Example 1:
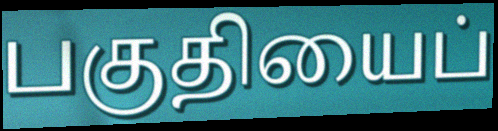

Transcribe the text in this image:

பகுதியைப்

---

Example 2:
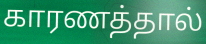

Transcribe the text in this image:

காரணத்தால்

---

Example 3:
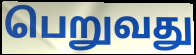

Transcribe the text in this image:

பெறுவது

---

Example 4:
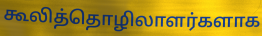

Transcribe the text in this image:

கூலித்தொழிலாளர்களாக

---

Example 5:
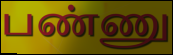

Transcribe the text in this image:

பண்ணு